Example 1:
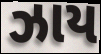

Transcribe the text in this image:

ઝાય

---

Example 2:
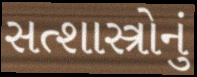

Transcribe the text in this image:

સત્શાસ્ત્રોનું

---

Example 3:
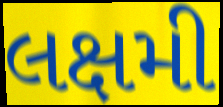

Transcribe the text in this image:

લક્ષમી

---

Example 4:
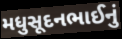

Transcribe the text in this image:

મધુસૂદનભાઈનું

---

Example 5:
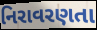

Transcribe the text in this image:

નિરાવરણતા